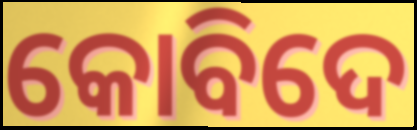
କୋବିଦେ